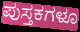
ಪುಸ್ತಕಗಳೂ